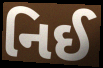
નિઈ